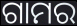
ଗାମର